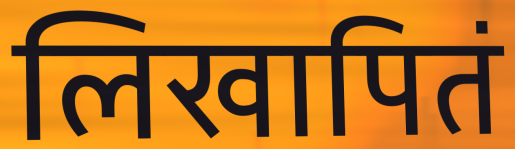
लिखापितं